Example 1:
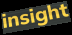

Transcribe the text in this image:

insight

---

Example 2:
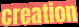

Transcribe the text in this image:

creation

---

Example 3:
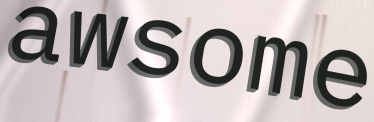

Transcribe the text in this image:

awsome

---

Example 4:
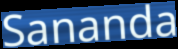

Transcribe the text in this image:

Sananda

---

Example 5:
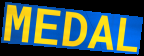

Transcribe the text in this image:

MEDAL